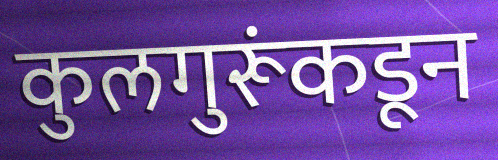
कुलगुरूंकडून